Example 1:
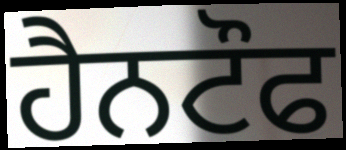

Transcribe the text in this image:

ਹੈਨਟੌਫ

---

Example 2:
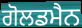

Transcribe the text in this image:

ਗੋਲਡਮੈਨ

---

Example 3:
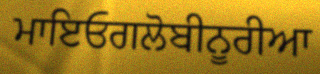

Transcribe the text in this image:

ਮਾਇਓਗਲੋਬੀਨੂਰੀਆ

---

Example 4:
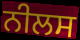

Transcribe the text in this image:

ਨੀਲਸ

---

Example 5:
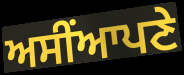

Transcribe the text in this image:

ਅਸੀਂਆਪਣੇ